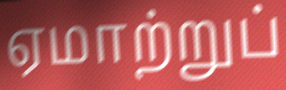
ஏமாற்றுப்